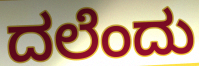
ದಲೆಂದು